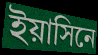
ইয়াসিনে